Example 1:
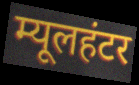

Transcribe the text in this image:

म्यूलहंटर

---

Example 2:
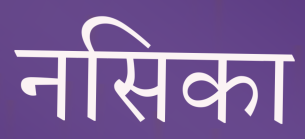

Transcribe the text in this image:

नसिका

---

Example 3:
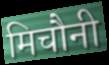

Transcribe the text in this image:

मिचौनी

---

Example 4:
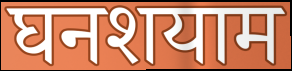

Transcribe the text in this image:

घनशयाम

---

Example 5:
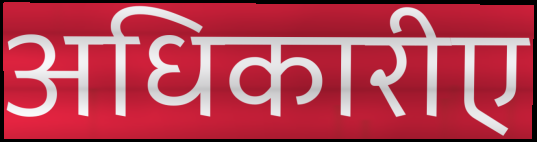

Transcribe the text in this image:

अधिकारीए